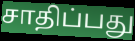
சாதிப்பது